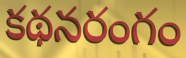
కథనరంగం